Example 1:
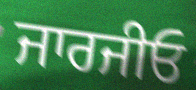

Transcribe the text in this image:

ਜਾਰਜੀਓ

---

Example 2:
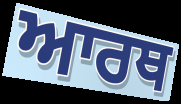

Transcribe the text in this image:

ਆਰਥ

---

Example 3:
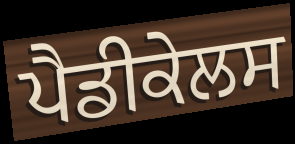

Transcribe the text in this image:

ਪੈਡੀਕੇਲਸ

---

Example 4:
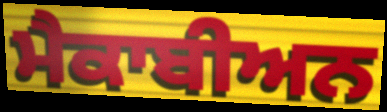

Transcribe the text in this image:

ਮੈਕਾਬੀਅਨ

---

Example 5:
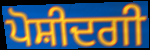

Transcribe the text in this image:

ਪੋਸ਼ੀਦਗੀ